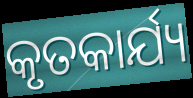
କୃତକାର୍ଯ୍ୟ